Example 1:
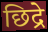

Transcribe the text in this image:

छिद्रे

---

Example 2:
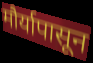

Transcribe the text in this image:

मौर्यापासून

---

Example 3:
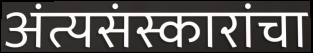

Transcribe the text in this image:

अंत्यसंस्कारांचा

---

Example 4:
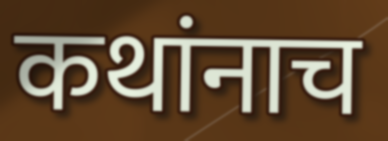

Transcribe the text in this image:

कथांनाच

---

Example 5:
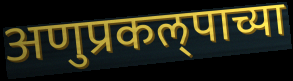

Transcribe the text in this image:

अणुप्रकल्पाच्या